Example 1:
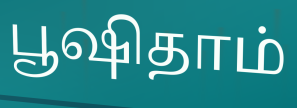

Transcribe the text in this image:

பூஷிதாம்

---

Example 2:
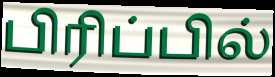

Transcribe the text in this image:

பிரிப்பில்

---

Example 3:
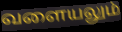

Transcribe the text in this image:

வளையலும்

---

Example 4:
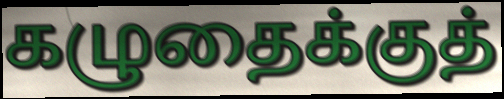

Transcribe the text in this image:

கழுதைக்குத்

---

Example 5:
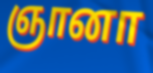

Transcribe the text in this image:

ஞானா